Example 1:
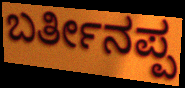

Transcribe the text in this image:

ಬರ್ತೀನಪ್ಪ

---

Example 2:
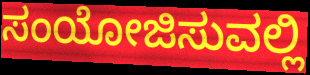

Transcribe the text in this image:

ಸಂಯೋಜಿಸುವಲ್ಲಿ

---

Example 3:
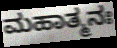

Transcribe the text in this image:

ಮಹಾತ್ಮನಃ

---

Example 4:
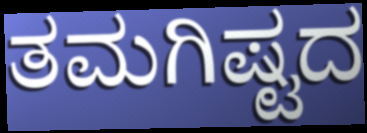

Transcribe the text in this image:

ತಮಗಿಷ್ಟದ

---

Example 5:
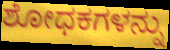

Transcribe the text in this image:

ಶೋಧಕಗಳನ್ನು